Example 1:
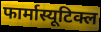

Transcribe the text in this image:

फार्मास्यूटिक्ल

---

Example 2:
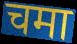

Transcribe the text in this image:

चमा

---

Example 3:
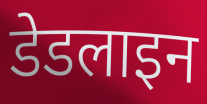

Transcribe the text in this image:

डेडलाइन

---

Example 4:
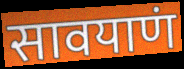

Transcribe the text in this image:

सावयाणं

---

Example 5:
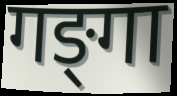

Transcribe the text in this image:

गङ्गा